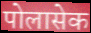
पोलासेक